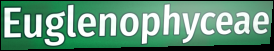
Euglenophyceae